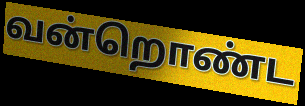
வன்றொண்ட